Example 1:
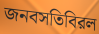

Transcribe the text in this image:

জনবসতিবিরল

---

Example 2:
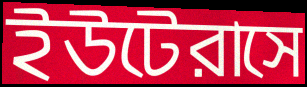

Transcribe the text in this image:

ইউটেরাসে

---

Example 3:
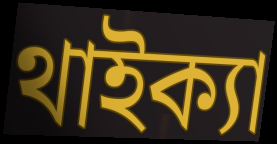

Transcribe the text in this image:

থাইক্যা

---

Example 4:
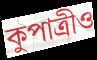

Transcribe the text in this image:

কুপাত্রীও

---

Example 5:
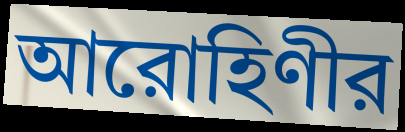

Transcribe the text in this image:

আরোহিণীর